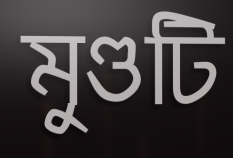
মুণ্ডটি